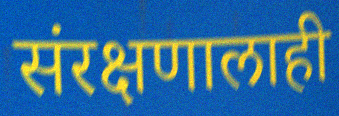
संरक्षणालाही